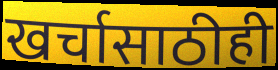
खर्चासाठीही